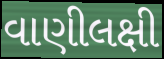
વાણીલક્ષી